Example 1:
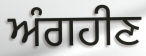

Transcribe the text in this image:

ਅੰਗਹੀਣ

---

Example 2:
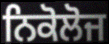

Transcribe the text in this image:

ਨਿਕੋਲੋਜ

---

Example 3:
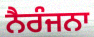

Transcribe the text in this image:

ਨੈਰੰਜਨਾ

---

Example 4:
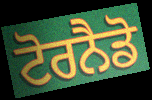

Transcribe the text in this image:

ਟੋਰਨੈਡੋ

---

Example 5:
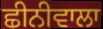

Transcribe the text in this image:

ਛੀਨੀਵਾਲਾ